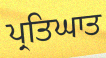
ਪ੍ਰਤਿਘਾਤ